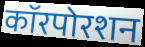
कॉरपोरशन